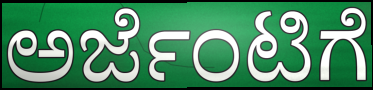
ಅರ್ಜೆಂಟಿಗೆ